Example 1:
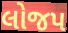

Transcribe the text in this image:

લોજપ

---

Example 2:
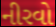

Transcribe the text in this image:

નીરવો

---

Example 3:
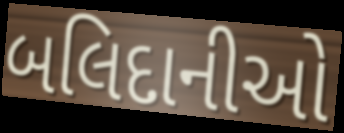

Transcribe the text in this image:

બલિદાનીઓ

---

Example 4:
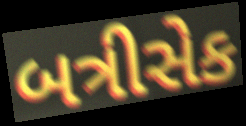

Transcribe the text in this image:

બત્રીસેક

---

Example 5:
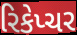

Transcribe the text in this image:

રિકેપ્ચર